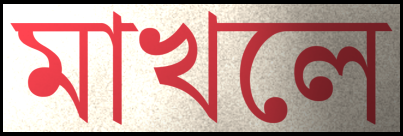
মাখলে